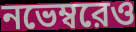
নভেম্বরেও